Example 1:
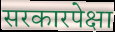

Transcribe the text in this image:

सरकारपेक्षा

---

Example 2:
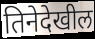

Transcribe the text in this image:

तिनेदेखील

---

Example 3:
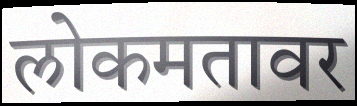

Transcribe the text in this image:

लोकमतावर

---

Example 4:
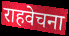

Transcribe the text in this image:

राहवेचना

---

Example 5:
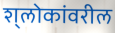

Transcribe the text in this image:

श्लोकांवरील